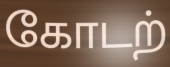
கோடற்